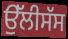
ਉੱਲੀਸੱਸ